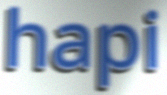
hapi